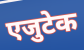
एजुटेक